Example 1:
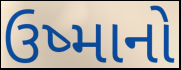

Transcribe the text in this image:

ઉષ્માનો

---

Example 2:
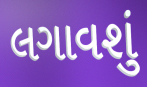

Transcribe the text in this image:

લગાવશું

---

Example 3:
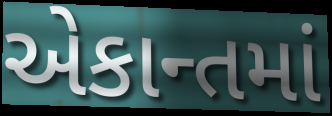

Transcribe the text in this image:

એકાન્તમાં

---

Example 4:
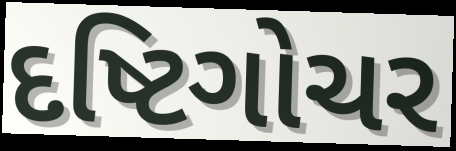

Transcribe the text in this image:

દષ્ટિગોચર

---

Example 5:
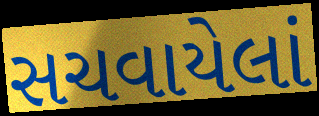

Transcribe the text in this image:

સચવાયેલાં